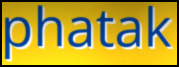
phatak